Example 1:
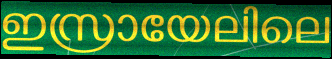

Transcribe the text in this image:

ഇസ്രായേലിലെ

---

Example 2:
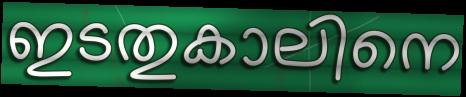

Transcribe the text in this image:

ഇടതുകാലിനെ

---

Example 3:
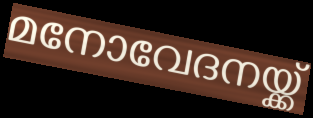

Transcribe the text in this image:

മനോവേദനയ്ക്ക്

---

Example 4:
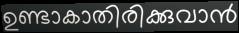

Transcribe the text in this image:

ഉണ്ടാകാതിരിക്കുവാൻ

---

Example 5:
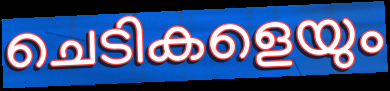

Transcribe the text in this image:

ചെടികളെയും